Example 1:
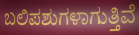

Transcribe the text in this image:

ಬಲಿಪಶುಗಳಾಗುತ್ತಿವೆ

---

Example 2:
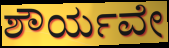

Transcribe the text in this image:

ಶೌರ್ಯವೇ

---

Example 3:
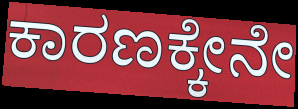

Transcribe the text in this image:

ಕಾರಣಕ್ಕೇನೇ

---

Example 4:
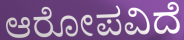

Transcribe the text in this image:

ಆರೋಪವಿದೆ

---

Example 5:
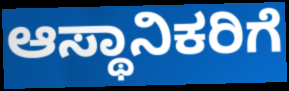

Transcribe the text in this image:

ಆಸ್ಥಾನಿಕರಿಗೆ